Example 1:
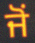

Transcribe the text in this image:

ਜੋਂ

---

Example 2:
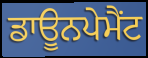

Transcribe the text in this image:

ਡਾਊਨਪੇਮੈਂਟ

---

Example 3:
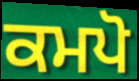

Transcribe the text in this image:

ਕਮਪੋ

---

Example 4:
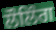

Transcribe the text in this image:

ਲੌਲਿੰਗ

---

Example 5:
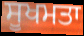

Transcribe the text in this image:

ਸੂਖਮਤਾ